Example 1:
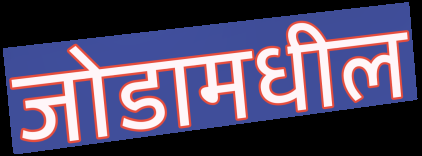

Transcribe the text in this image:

जोडामधील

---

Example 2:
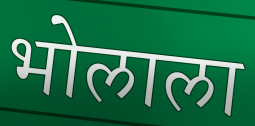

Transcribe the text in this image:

भोलाला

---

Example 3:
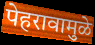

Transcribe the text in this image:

पेहरावामुळे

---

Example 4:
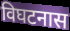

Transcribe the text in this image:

विघटनास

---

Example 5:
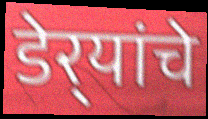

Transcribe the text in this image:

डेर्‍यांचे